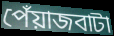
পেঁয়াজবাটা